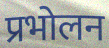
प्रभोलन